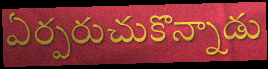
ఏర్పరుచుకొన్నాడు